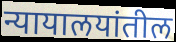
न्यायालयांतील